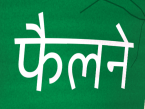
फैलने